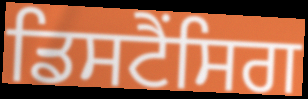
ਡਿਸਟੈਂਸਿਗ